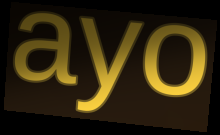
ayo